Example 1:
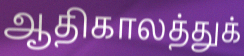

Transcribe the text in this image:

ஆதிகாலத்துக்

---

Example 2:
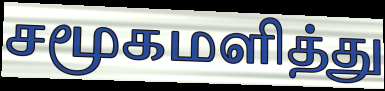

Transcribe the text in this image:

சமூகமளித்து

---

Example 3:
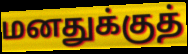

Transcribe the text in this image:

மனதுக்குத்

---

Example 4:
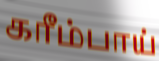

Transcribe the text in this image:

கரீம்பாய்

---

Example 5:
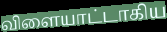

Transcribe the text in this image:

விளையாட்டாகிய